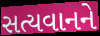
સત્યવાનને